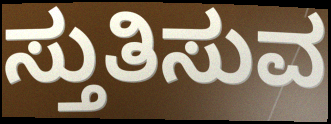
ಸ್ತುತಿಸುವ